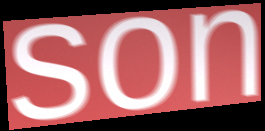
son